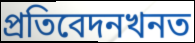
প্ৰতিবেদনখনত